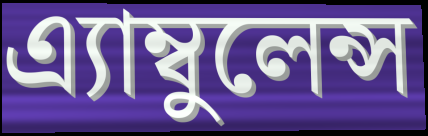
এ্যাম্বুলেন্স